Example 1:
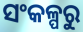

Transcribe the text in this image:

ସଂକଳ୍ପରୁ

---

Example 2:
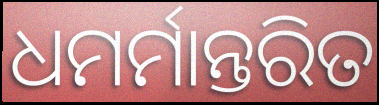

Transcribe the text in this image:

ଧମର୍ମାନ୍ତରିତ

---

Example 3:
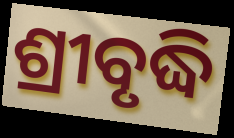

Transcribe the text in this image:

ଶ୍ରୀବୃଦ୍ଧି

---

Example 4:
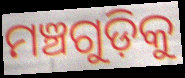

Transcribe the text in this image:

ମଞ୍ଚଗୁଡ଼ିକୁ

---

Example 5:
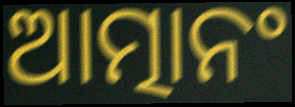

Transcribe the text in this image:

ଆତ୍ମାନଂ